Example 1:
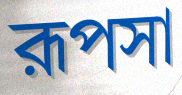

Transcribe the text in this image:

রূপসা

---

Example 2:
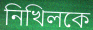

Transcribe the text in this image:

নিখিলকে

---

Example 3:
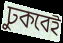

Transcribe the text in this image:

ঢুকবেই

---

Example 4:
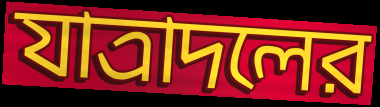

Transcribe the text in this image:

যাত্রাদলের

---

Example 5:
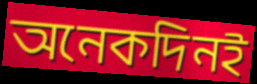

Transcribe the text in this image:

অনেকদিনই